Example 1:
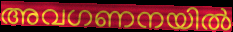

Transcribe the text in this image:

അവഗണനയിൽ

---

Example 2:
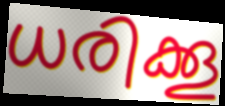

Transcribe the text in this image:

ധരിക്കൂ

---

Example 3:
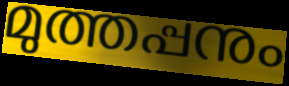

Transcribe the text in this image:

മുത്തപ്പനും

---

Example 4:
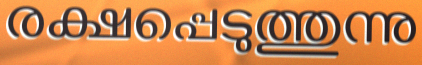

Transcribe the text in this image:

രക്ഷപ്പെടുത്തുന്നു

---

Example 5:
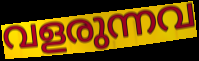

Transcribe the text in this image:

വളരുന്നവ